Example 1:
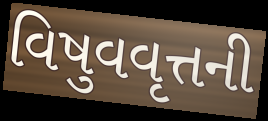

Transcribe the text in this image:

વિષુવવૃત્તની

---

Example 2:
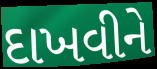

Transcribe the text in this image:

દાખવીને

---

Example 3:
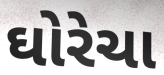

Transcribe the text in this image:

ઘોરેચા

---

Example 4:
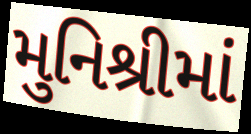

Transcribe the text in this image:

મુનિશ્રીમાં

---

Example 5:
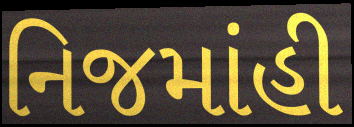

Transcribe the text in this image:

નિજમાંહી